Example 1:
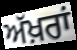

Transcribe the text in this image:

ਅੱਖ਼ਰਾਂ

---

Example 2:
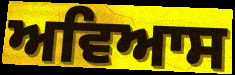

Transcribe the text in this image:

ਅਵਿਆਸ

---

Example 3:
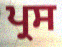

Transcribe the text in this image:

ਪ੍ਰਸ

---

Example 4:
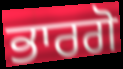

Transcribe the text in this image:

ਭਾਰਗੋ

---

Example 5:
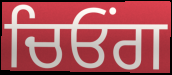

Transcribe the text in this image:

ਚਿਓਂਗ